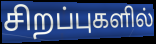
சிறப்புகளில்